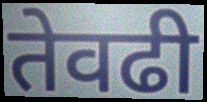
तेवढी